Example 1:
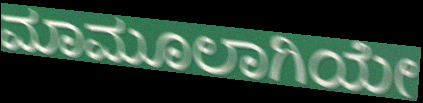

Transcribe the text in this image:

ಮಾಮೂಲಾಗಿಯೇ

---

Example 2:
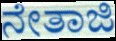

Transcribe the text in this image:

ನೇತಾಜಿ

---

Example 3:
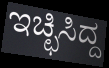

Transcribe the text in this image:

ಇಚ್ಛಿಸಿದ್ದ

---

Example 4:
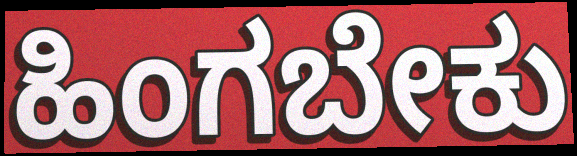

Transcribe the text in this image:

ಹಿಂಗಬೇಕು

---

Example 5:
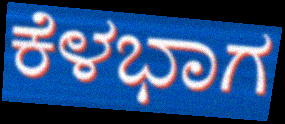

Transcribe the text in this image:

ಕೆಳಭಾಗ